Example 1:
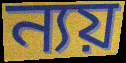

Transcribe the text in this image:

ন্যয়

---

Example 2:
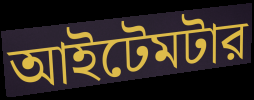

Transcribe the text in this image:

আইটেমটার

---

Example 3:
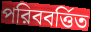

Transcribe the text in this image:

পরিববর্ত্তিত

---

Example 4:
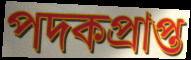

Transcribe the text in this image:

পদকপ্রাপ্ত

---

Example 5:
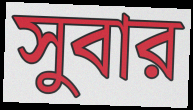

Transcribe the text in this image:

সুবার